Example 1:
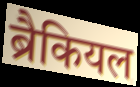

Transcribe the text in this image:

ब्रैकियल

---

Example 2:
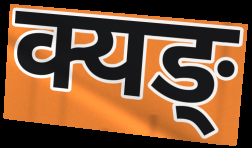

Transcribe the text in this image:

क्यङ्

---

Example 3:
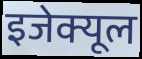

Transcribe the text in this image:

इजेक्यूल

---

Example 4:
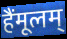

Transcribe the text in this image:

हैंमूलम्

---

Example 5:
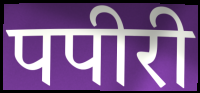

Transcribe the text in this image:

पपीरी